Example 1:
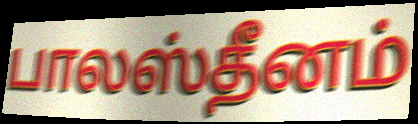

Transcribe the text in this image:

பாலஸ்தீனம்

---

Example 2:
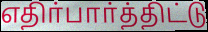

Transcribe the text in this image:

எதிர்பார்த்திட்டு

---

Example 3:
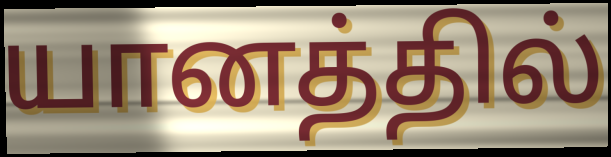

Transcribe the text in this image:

யானத்தில்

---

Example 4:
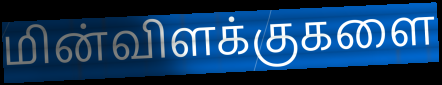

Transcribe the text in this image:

மின்விளக்குகளை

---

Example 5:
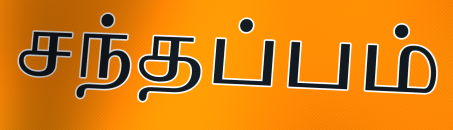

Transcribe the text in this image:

சந்தப்பம்